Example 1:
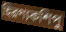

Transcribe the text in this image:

হিরণ্যকশিপু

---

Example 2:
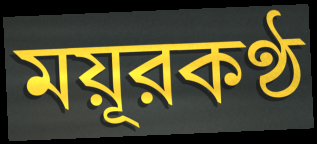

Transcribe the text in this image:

ময়ূরকণ্ঠ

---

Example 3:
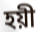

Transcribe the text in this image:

হয়ী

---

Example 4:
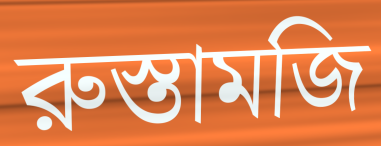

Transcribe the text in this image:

রুস্তামজি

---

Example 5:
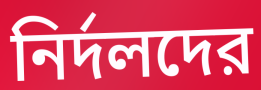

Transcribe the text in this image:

নির্দলদের